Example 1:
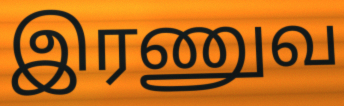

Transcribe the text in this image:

இரணுவ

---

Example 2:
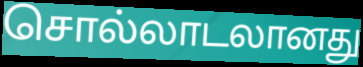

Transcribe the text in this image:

சொல்லாடலானது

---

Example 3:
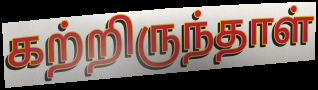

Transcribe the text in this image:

கற்றிருந்தாள்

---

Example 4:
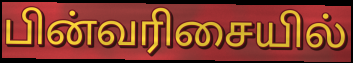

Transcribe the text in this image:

பின்வரிசையில்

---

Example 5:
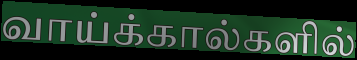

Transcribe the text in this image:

வாய்க்கால்களில்